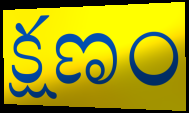
క్షణం